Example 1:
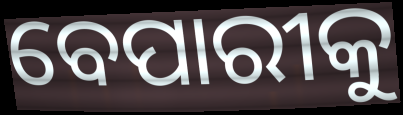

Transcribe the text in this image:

ବେପାରୀକୁ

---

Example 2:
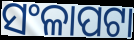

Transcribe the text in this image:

ସଂଳାପଟା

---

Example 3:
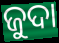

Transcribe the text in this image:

ଜୁଦା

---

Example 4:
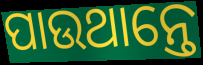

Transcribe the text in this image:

ପାଉଥାନ୍ତେ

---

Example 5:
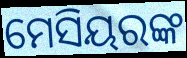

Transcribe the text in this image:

ମେସିୟରଙ୍କ